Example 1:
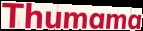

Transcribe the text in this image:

Thumama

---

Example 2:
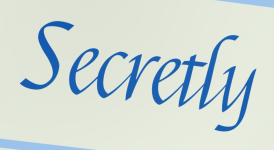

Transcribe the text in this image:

Secretly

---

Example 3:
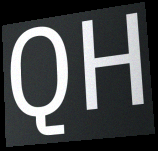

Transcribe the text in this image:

QH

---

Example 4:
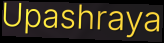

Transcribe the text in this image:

Upashraya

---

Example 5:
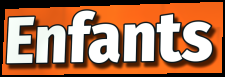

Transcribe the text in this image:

Enfants